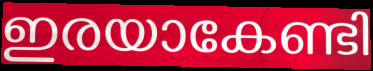
ഇരയാകേണ്ടി